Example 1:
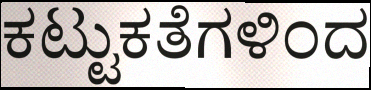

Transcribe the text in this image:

ಕಟ್ಟುಕತೆಗಳಿಂದ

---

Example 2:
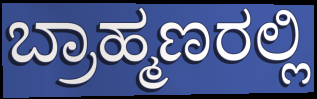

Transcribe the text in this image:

ಬ್ರಾಹ್ಮಣರಲ್ಲಿ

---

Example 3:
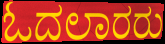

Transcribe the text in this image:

ಓದಲಾರರು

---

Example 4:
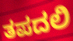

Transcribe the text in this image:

ತಪದಲಿ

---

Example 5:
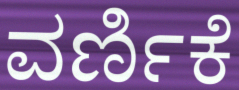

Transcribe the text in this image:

ವರ್ಣಿಕೆ